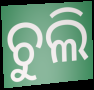
ଚୁଲି